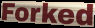
Forked